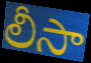
లీసా